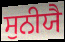
ਸੁਨੀਯੈ